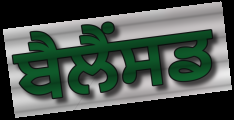
ਬੈਲੈਂਸਡ